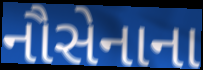
નૌસેનાના